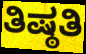
ತಿಷ್ಠತಿ